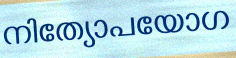
നിത്യോപയോഗ